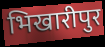
भिखारीपुर